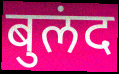
बुलंद